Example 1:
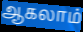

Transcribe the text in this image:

ஆகலாம்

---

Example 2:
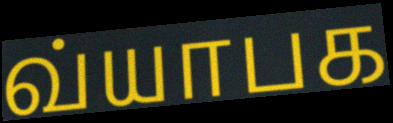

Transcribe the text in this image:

வ்யாபக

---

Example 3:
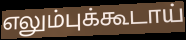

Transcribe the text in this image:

எலும்புக்கூடாய்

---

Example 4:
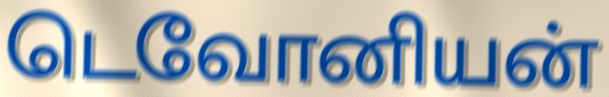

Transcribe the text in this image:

டெவோனியன்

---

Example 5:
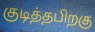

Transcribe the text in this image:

குடித்தபிறகு